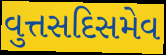
વુત્તસદિસમેવ